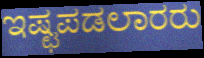
ಇಷ್ಟಪಡಲಾರರು